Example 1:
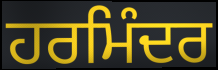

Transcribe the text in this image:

ਹਰਮਿੰਦਰ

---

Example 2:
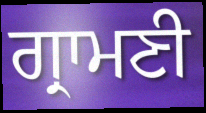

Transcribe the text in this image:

ਗ੍ਰਾਮਣੀ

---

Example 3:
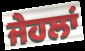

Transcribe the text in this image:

ਜੇਹਲਾਂ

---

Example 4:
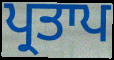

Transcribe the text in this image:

ਪ੍ਰਤਾਪ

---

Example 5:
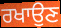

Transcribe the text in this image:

ਰਖਾਉਣ